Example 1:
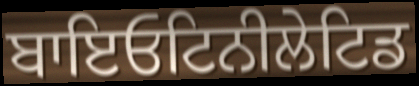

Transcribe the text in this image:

ਬਾਇਓਟਿਨੀਲੇਟਿਡ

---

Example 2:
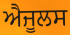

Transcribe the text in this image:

ਐਜੂਲਸ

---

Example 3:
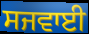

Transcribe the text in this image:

ਸਜਵਾਈ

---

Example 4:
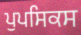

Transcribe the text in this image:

ਪੁਪਸਿਕਸ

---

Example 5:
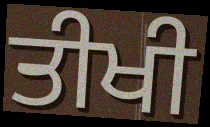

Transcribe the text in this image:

ਤੀਖੀ